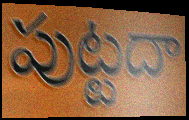
పుట్టదా